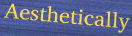
Aesthetically